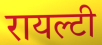
रायल्टी